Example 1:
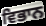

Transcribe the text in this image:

ਵਿਭਾਨ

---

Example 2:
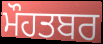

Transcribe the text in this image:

ਮੌਹਤਬਰ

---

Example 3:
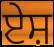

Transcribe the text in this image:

ਏਸ਼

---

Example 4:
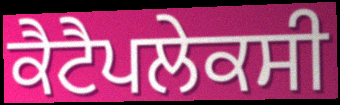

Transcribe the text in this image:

ਕੈਟੈਪਲੇਕਸੀ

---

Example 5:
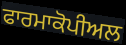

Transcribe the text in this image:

ਫਾਰਮਾਕੋਪੀਅਲ